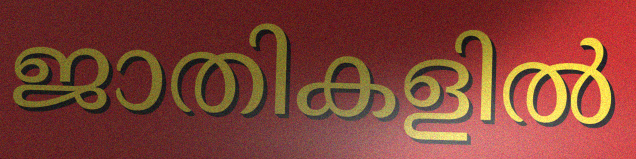
ജാതികളിൽ